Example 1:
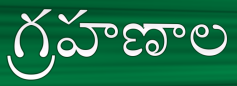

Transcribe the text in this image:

గ్రహణాల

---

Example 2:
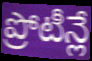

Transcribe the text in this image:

ప్రోటీన్లే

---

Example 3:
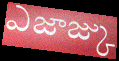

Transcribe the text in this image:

ఎజాజ్కు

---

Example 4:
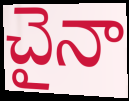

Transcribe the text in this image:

చైనా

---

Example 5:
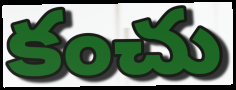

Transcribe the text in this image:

కంచు